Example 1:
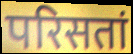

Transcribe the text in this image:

परिसतां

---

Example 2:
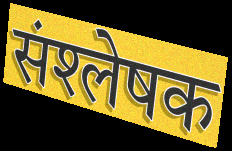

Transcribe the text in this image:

संश्लेषक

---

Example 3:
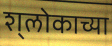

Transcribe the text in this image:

श्लोकाच्या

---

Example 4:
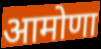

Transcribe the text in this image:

आमोणा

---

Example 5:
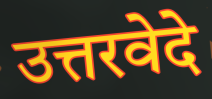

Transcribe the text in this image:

उत्तरवेदे